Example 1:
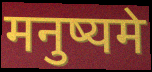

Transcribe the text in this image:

मनुष्यमे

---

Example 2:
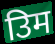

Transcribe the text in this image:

उिम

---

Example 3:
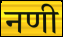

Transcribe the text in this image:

नणी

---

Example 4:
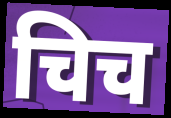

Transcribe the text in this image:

चिच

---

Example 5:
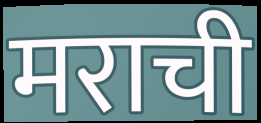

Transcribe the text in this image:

मराची